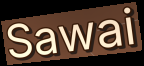
Sawai